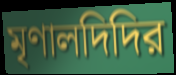
মৃণালদিদির